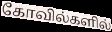
கோவில்களில்